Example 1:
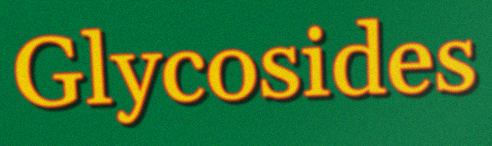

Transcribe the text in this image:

Glycosides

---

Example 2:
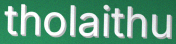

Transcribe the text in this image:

tholaithu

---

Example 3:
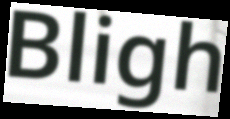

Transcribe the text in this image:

Bligh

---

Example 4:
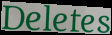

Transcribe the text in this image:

Deletes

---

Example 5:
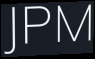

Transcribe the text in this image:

JPM